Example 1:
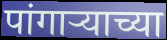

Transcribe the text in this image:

पांगार्‍याच्या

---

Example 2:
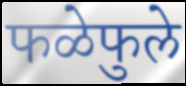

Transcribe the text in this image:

फळेफुले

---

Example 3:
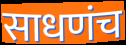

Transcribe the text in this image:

साधणंच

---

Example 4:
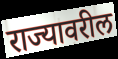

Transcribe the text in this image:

राज्यावरील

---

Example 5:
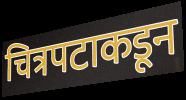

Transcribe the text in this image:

चित्रपटाकडून